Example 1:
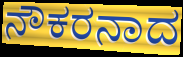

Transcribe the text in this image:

ನೌಕರನಾದ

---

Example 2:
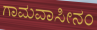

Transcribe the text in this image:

ಗಾಮವಾಸೀನಂ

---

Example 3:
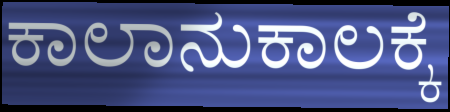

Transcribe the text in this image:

ಕಾಲಾನುಕಾಲಕ್ಕೆ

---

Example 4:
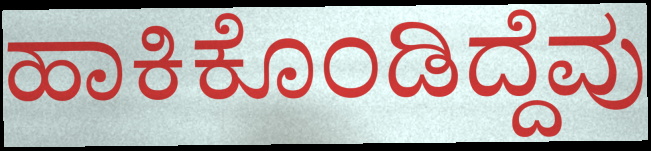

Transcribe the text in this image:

ಹಾಕಿಕೊಂಡಿದ್ದೆವು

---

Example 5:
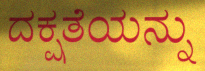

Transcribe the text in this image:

ದಕ್ಷತೆಯನ್ನು